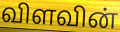
விளவின்